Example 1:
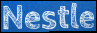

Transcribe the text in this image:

Nestle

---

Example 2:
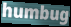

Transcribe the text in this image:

humbug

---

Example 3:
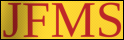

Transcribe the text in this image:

JFMS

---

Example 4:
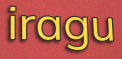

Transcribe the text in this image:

iragu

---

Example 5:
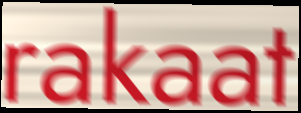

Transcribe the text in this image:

rakaat